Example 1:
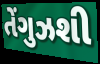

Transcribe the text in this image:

તેંગુઝશી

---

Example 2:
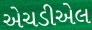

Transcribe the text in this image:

એચડીએલ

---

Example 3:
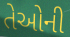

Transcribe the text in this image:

તેઓની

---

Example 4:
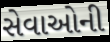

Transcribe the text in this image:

સેવાઓની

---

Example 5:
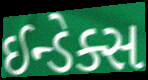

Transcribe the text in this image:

ઈન્ડેક્સ